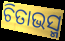
ଚିତାଭସ୍ମ